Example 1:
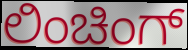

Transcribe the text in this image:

ಲಿಂಚಿಂಗ್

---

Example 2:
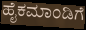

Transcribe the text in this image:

ಹೈಕಮಾಂಡಿಗೆ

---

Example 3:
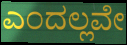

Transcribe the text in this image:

ಎಂದಲ್ಲವೇ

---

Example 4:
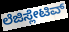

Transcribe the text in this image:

ಲೆಜಿಸ್ಲೇಟಿವ್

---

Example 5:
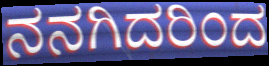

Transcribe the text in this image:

ನನಗಿದರಿಂದ